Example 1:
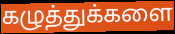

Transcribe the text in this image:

கழுத்துக்களை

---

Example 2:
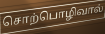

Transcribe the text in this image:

சொற்பொழிவால்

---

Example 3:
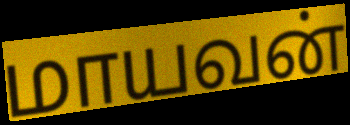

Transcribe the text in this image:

மாயவன்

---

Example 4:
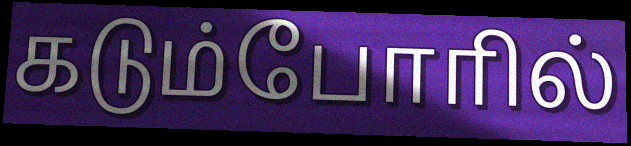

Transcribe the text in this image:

கடும்போரில்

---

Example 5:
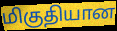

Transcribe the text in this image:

மிகுதியான